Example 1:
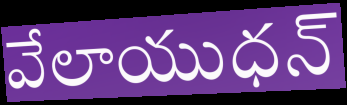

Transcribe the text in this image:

వేలాయుధన్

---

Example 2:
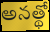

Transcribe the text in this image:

అనత్థో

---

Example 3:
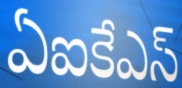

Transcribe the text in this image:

ఏఐకేఎస్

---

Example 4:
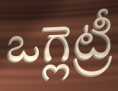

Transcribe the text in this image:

ఒగ్లెట్రీ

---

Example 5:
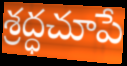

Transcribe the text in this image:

శ్రద్ధచూపే